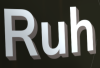
Ruh